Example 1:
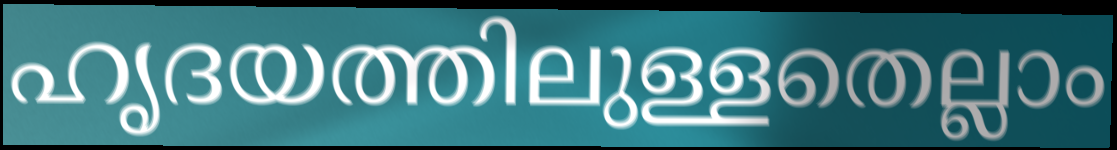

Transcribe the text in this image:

ഹൃദയത്തിലുള്ളതെല്ലാം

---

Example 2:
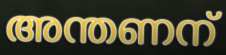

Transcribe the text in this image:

അന്തണന്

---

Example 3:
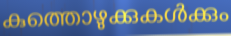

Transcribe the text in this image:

കുത്തൊഴുക്കുകൾക്കും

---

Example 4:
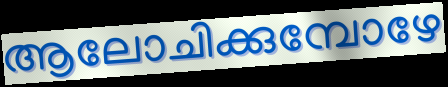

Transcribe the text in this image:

ആലോചിക്കുമ്പോഴേ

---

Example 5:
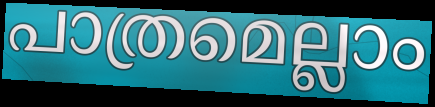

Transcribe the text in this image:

പാത്രമെല്ലാം